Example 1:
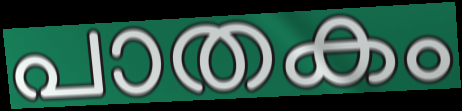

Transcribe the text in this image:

പാതകം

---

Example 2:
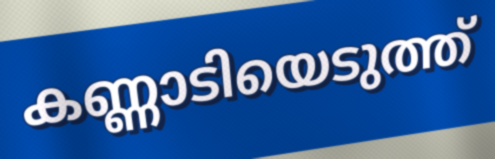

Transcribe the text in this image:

കണ്ണാടിയെടുത്ത്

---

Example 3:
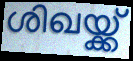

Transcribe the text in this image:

ശിഖയ്ക്ക്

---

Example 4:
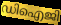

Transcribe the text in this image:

ഡിഐജി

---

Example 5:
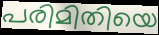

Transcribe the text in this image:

പരിമിതിയെ